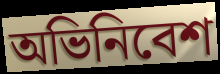
অভিনিবেশ